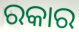
ରକାର